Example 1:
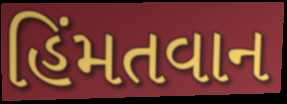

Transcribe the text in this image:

હિંમતવાન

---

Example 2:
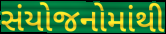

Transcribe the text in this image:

સંયોજનોમાંથી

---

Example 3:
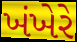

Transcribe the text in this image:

ખંખેરે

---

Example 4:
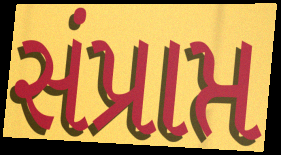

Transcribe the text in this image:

સંપ્રાપ્ત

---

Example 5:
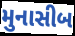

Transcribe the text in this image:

મુનાસીબ